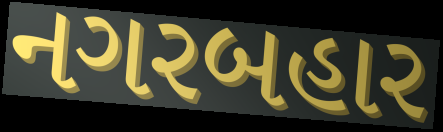
નગરબહાર